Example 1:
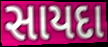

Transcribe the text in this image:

સાયદા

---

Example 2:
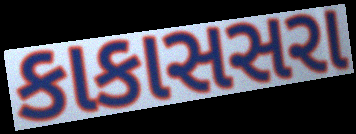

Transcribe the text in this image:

કાકાસસરા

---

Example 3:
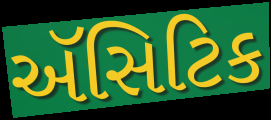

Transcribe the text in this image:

ઍસિટિક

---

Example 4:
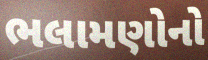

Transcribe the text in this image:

ભલામણોનો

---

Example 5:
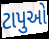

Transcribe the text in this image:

ટાપુઓ